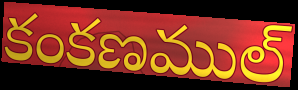
కంకణముల్